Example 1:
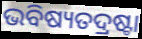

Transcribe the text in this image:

ଭବିଷ୍ୟତଦ୍ରଷ୍ଟା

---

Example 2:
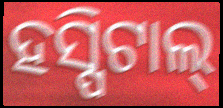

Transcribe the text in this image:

ହସ୍ପିଟାଲ୍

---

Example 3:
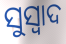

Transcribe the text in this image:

ସୁସ୍ୱାଦ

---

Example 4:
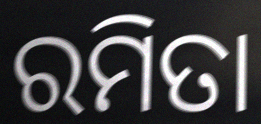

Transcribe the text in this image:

ରମିତା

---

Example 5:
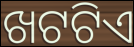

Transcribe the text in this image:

ଖଟଟିଏ